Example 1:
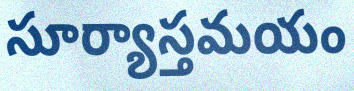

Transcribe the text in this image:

సూర్యాస్తమయం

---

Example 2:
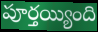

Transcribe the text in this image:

పూర్తయ్యింది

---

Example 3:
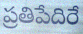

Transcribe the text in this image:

ప్రతిపేదిరే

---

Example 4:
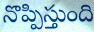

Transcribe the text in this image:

నొప్పిస్తుంది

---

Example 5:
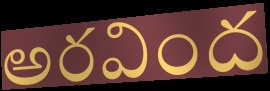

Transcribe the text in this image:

అరవింద